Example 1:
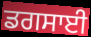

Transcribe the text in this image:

ਡਗਸਾਈ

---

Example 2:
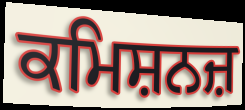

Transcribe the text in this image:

ਕਮਿਸ਼ਨਜ਼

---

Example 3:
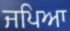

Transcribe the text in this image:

ਜਪਿਆ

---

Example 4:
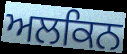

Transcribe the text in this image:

ਅਲਕਿਨ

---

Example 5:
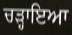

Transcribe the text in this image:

ਚੜ੍ਹਾਇਆ